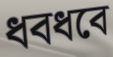
ধবধবে